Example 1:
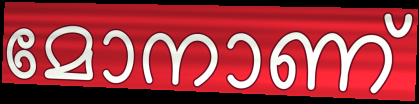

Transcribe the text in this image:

മോനാണ്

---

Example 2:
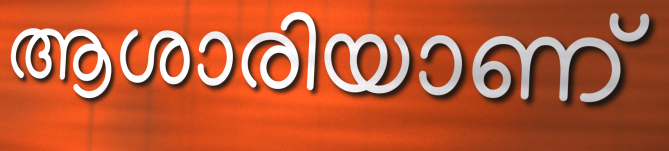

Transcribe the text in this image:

ആശാരിയാണ്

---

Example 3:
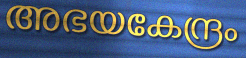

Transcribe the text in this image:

അഭയകേന്ദ്രം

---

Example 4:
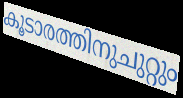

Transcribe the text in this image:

കൂടാരത്തിനുചുറ്റും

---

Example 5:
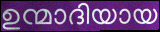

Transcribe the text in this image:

ഉന്മാദിയായ